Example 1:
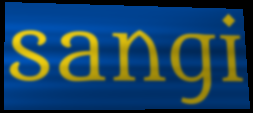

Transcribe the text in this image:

sangi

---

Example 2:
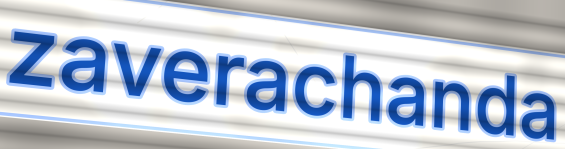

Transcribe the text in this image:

zaverachanda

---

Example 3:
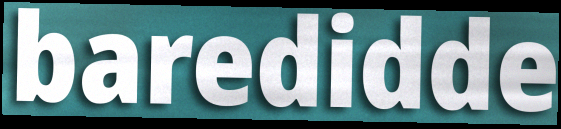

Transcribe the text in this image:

baredidde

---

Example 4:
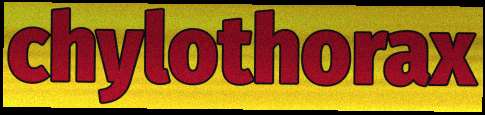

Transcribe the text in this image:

chylothorax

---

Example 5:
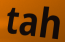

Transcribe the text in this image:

tah